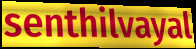
senthilvayal